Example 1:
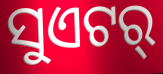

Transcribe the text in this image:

ସୁଏଟର୍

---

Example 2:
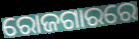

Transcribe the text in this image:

ରୋଜଗାରରେ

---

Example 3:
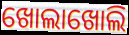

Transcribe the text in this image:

ଖୋଲାଖୋଲି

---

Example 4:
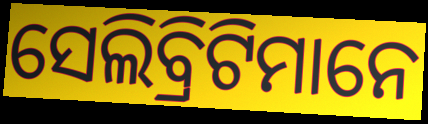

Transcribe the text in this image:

ସେଲିବ୍ରିଟିମାନେ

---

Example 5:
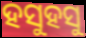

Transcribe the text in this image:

ହସୁହସୁ